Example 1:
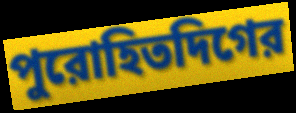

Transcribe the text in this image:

পুরোহিতদিগের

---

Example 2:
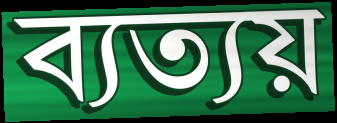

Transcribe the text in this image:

ব্যত্যয়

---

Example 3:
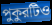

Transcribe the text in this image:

পুকুরটিও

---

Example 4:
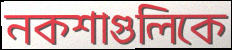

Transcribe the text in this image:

নকশাগুলিকে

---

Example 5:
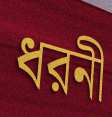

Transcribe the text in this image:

ধরনী